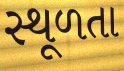
સ્થૂળતા